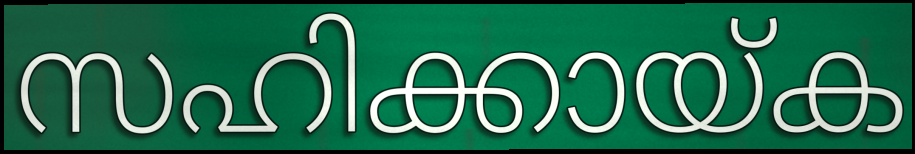
സഹിക്കായ്ക